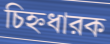
চিহ্নধারক